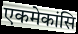
एकमेकांसि